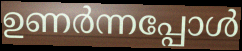
ഉണർന്നപ്പോൾ